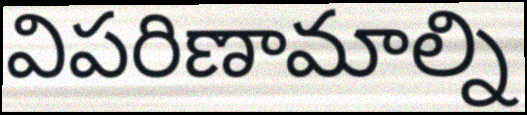
విపరిణామాల్ని